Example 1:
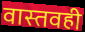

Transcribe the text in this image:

वास्तवही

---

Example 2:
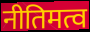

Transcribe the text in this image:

नीतिमत्व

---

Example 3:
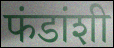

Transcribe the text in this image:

फंडांशी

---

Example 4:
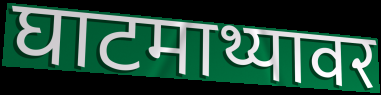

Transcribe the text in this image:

घाटमाथ्यावर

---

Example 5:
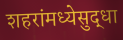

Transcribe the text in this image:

शहरांमध्येसुद्धा